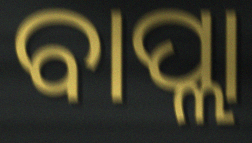
ବାପ୍ଲା